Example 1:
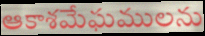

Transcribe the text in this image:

ఆకాశమేఘములను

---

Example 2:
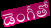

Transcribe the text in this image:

డెంగీతో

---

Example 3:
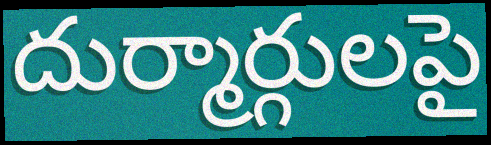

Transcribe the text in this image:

దుర్మార్గులపై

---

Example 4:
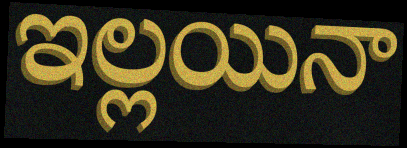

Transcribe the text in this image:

ఇల్లయినా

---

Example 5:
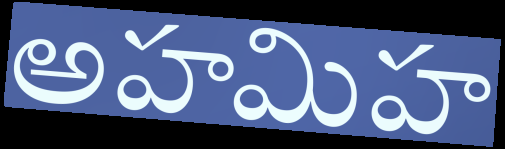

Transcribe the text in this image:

అహమిహ